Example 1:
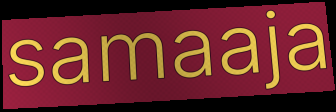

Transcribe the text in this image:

samaaja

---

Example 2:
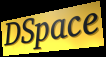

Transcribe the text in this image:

DSpace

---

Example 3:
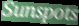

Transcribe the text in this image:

Sunspots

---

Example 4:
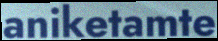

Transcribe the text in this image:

aniketamte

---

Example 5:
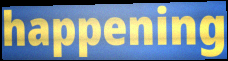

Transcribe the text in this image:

happening